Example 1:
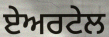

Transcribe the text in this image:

ਏਅਰਟੇਲ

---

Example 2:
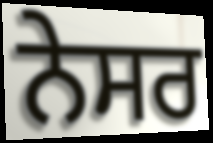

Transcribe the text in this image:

ਨੇਸਰ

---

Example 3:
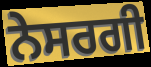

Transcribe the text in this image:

ਨੇਸਰਗੀ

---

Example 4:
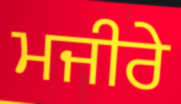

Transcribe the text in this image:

ਮਜੀਰੇ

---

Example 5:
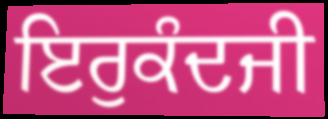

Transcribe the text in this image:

ਇਰੁਕੰਦਜੀ